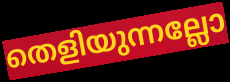
തെളിയുന്നല്ലോ